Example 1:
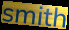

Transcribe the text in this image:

smith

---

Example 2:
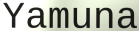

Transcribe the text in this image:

Yamuna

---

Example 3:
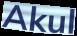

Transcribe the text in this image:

Akul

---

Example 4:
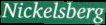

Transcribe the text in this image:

Nickelsberg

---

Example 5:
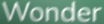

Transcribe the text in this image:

Wonder